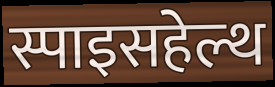
स्पाइसहेल्थ